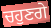
ਚਹੁਣਗੇ